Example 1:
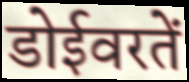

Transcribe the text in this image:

डोईवरतें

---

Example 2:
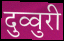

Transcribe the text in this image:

दुव्वुरी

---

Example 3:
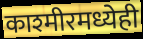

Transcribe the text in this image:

काश्‍मीरमध्येही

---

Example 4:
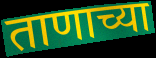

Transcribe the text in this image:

ताणाच्या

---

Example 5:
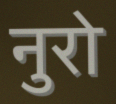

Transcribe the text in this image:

नुरो